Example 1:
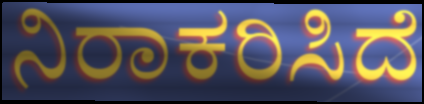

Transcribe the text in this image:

ನಿರಾಕರಿಸಿದೆ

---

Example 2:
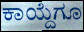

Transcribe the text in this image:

ಕಾಯ್ದೆಗೂ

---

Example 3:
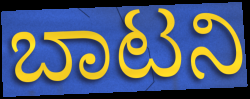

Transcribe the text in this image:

ಬಾಟನಿ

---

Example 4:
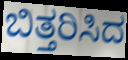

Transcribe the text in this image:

ಬಿತ್ತರಿಸಿದ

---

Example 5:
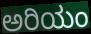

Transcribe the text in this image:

ಅರಿಯಂ